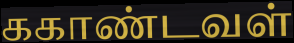
ககாண்டவள்